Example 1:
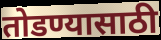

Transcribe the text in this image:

तोडण्यासाठी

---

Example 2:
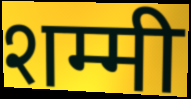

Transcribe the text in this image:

शम्मी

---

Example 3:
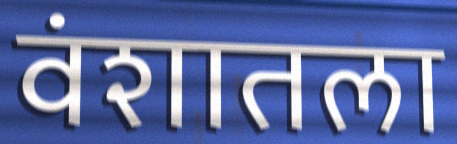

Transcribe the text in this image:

वंशातला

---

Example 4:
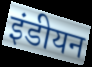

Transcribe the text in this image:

इंडीयन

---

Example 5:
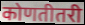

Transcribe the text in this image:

कोणतीतरी